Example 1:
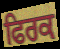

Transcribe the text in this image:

ਫਿਰਕ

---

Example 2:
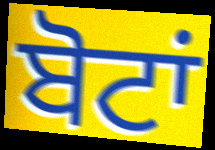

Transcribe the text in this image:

ਬੋਟਾਂ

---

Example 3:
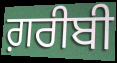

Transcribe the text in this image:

ਗ਼ਰੀਬੀ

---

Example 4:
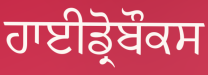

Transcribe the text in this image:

ਹਾਈਡ੍ਰੋਬੌਕਸ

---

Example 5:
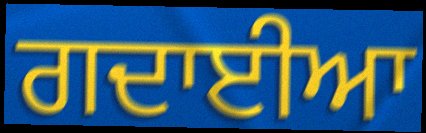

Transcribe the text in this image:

ਗਦਾਈਆ